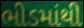
ભીડમાંથી